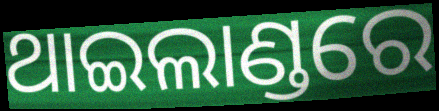
ଥାଇଲାଣ୍ଡରେ